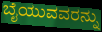
ಬೈಯುವವರನ್ನು